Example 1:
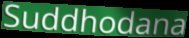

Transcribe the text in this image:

Suddhodana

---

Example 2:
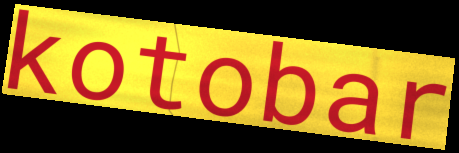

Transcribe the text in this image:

kotobar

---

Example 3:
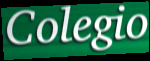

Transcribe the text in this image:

Colegio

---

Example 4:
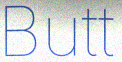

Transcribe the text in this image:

Butt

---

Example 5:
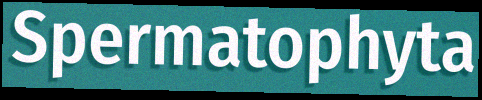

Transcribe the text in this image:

Spermatophyta